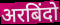
अरबिंदो